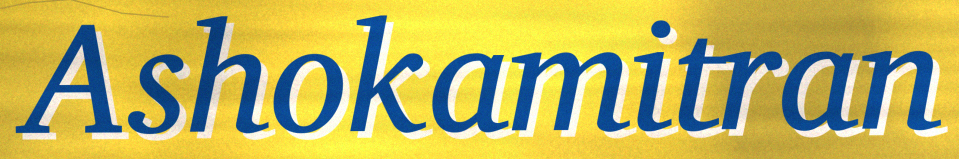
Ashokamitran